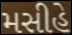
મસીહે